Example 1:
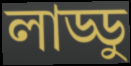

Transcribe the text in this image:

লাড্ডু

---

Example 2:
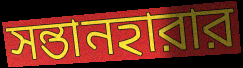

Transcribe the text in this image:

সন্তানহারার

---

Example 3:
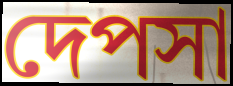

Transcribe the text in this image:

দেপসা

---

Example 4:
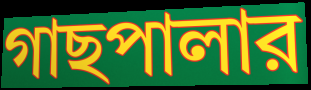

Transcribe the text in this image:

গাছপালার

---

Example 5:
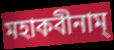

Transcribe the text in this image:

মহাকবীনাম্